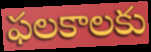
ఫలకాలకు